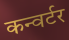
कन्वर्टर